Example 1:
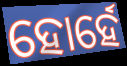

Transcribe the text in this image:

ହୋର୍ହେ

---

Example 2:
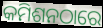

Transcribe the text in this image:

କମିଶନଠାରେ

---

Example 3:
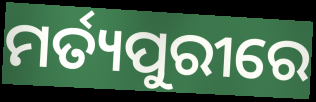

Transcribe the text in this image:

ମର୍ତ୍ୟପୁରୀରେ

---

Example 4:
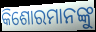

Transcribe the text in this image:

କିଶୋରମାନଙ୍କୁ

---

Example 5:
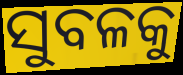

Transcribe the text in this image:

ସୁବଳକୁ